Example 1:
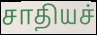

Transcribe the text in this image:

சாதியச்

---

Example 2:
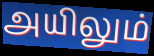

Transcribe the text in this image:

அயிலும்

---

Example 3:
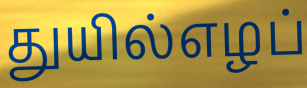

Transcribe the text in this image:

துயில்எழப்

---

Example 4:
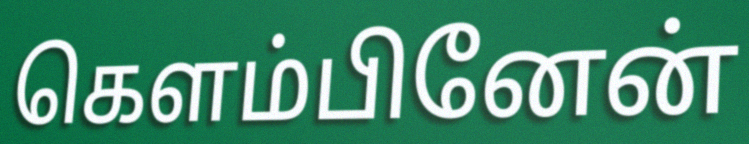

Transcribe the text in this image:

கெளம்பினேன்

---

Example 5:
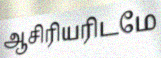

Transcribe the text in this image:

ஆசிரியரிடமே